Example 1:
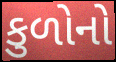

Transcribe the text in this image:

કુળોનો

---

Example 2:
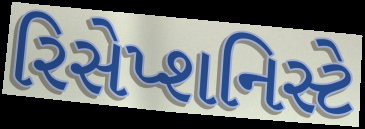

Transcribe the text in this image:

રિસેપ્શનિસ્ટે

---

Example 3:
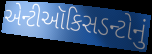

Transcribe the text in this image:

એન્ટીઑકિસડન્ટોનું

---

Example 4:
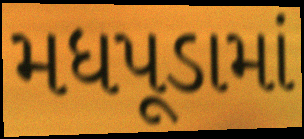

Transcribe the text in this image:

મધપૂડામાં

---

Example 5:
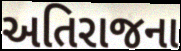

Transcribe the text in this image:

અતિરાજના